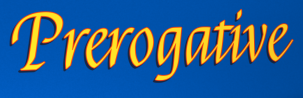
Prerogative